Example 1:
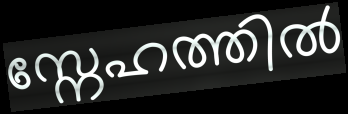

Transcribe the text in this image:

സ്നേഹത്തിൽ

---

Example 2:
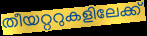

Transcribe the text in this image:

തീയറ്ററുകളിലേക്ക്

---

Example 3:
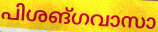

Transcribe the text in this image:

പിശങ്ഗവാസാ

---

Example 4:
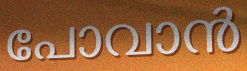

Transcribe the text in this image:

പോവാൻ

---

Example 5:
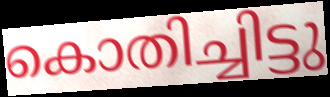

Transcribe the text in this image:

കൊതിച്ചിട്ടു